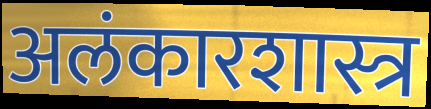
अलंकारशास्त्र